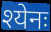
श्येनः